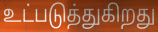
உட்படுத்துகிறது